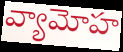
వ్యామోహ